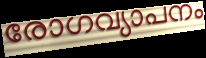
രോഗവ്യാപനം